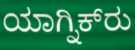
ಯಾಗ್ನಿಕ್‍ರು